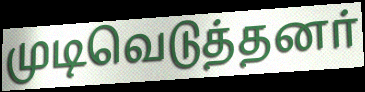
முடிவெடுத்தனர்